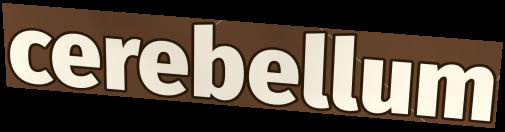
cerebellum